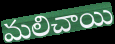
మలిచాయి